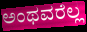
ಅಂಥವರೆಲ್ಲ